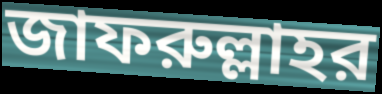
জাফরুল্লাহর